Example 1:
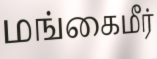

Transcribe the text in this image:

மங்கைமீர்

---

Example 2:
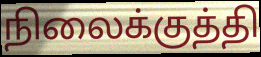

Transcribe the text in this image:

நிலைக்குத்தி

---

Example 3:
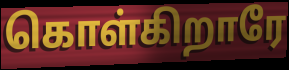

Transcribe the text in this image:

கொள்கிறாரே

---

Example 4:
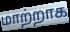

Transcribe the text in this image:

மாற்றாக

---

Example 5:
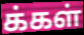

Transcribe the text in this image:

க்கள்